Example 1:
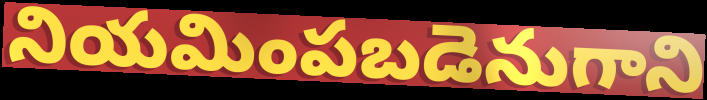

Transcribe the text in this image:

నియమింపబడెనుగాని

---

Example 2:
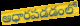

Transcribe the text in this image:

ఆధారపడడంలో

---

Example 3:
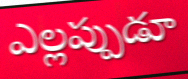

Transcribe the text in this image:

ఎల్లప్పుడూ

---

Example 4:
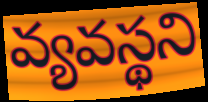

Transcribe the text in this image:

వ్యవస్థని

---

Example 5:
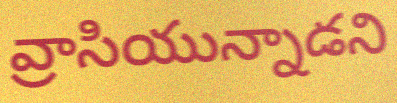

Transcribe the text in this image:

వ్రాసియున్నాడని